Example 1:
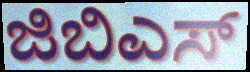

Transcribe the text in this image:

ಜಿಬಿಎಸ್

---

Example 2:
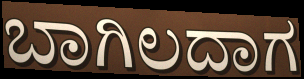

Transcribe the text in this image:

ಬಾಗಿಲದಾಗ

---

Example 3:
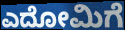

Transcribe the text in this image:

ಎದೋಮಿಗೆ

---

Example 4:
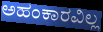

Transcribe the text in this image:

ಅಹಂಕಾರವಿಲ್ಲ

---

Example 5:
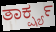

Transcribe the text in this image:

ತಾರ್ಕ್ಷ್ಯ